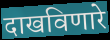
दाखविणारे